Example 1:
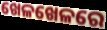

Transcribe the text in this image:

ଖେଳଖେଳରେ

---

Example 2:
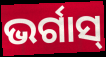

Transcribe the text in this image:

ଭର୍ଗାସ୍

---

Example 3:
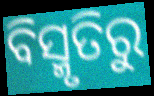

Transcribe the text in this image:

ବିସ୍ମୃତିରୁ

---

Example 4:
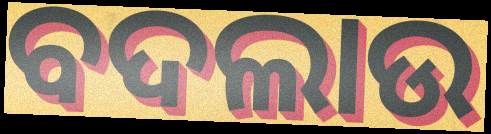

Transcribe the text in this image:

ବଦଲାଉ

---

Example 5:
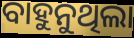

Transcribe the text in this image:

ବାହୁନୁଥିଲା